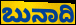
ಬುನಾದಿ